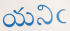
యనిఁ